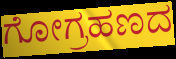
ಗೋಗ್ರಹಣದ